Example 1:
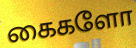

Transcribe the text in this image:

கைகளோ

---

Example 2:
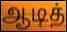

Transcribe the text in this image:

ஆடித்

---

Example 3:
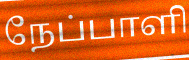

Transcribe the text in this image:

நேப்பாளி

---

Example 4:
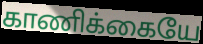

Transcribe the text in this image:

காணிக்கையே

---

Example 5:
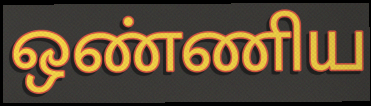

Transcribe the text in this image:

ஒண்ணிய